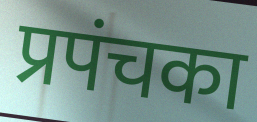
प्रपंचका